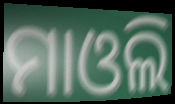
ମାଓଲି